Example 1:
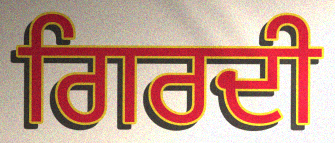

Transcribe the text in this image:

ਗਿਰਦੀ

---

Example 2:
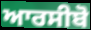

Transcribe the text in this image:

ਆਰਸੀਬੋ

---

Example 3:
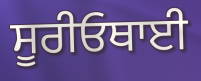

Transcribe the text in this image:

ਸੂਰੀਓਥਾਈ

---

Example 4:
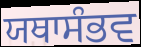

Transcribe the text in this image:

ਯਥਾਸੰਭਵ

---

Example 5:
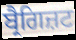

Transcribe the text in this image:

ਬ੍ਰੈਗਿਜ਼ਟ